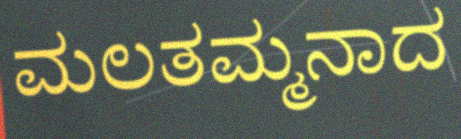
ಮಲತಮ್ಮನಾದ